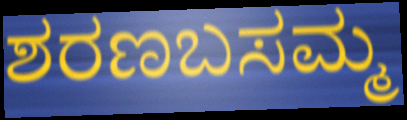
ಶರಣಬಸಮ್ಮ